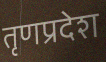
तृणप्रदेश